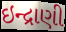
ઇન્દ્રાણી